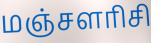
மஞ்சளரிசி